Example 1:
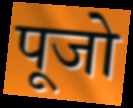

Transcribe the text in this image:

पूजो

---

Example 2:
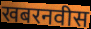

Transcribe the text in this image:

खबरनवीस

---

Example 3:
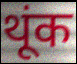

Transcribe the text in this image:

थूंक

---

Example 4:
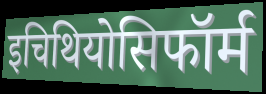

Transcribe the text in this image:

इचिथियोसिफॉर्म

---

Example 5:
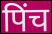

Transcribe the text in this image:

पिंच